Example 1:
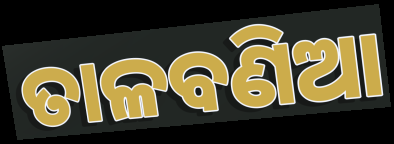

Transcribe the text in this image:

ତାଳବଣିଆ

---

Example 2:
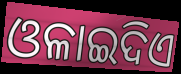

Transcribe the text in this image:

ଓଳାଇଦିଏ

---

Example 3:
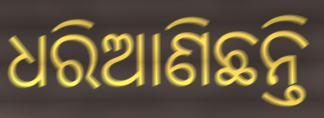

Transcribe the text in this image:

ଧରିଆଣିଛନ୍ତି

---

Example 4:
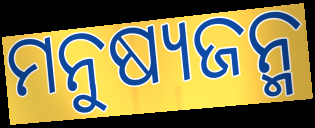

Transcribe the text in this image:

ମନୁଷ୍ୟଜନ୍ମ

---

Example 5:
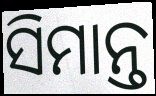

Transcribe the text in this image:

ସିମାନ୍ତ